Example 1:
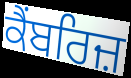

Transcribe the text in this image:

ਕੈਂਬਰਿਜ਼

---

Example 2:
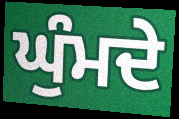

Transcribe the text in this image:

ਘੁੰਮਦੇ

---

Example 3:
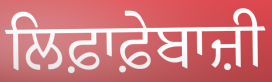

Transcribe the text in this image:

ਲਿਫ਼ਾਫ਼ੇਬਾਜ਼ੀ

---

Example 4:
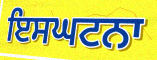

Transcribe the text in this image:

ਇਸਘਟਨਾ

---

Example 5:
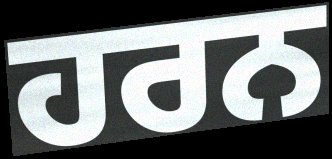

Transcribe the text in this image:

ਹਰਨ